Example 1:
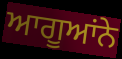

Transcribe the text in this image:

ਆਗੂਆਂਨੇ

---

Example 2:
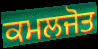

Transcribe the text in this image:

ਕਮਲਜੋਤ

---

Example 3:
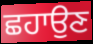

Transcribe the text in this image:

ਛਹਾਉਣ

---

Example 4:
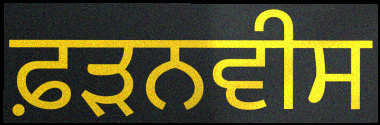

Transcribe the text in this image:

ਫ਼ੜਨਵੀਸ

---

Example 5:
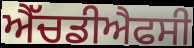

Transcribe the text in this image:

ਐੱਚਡੀਐਫਸੀ